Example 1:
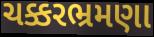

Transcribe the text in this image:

ચક્કરભ્રમણા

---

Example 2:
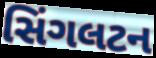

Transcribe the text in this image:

સિંગલટન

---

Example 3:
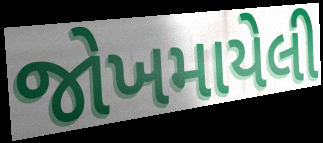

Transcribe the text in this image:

જોખમાયેલી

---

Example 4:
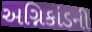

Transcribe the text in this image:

અગ્નિકાંડની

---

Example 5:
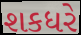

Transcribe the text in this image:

શકધરે